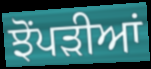
ਝੋਂਪੜੀਆਂ